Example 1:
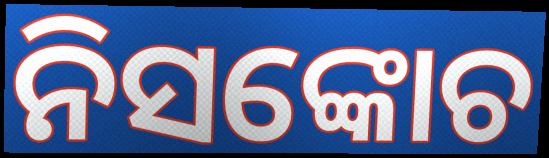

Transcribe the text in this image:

ନିସଙ୍କୋଚ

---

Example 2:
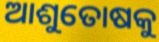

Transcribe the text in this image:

ଆଶୁତୋଷକୁ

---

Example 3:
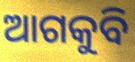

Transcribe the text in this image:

ଆଗକୁବି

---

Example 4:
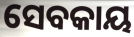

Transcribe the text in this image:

ସେବକାୟ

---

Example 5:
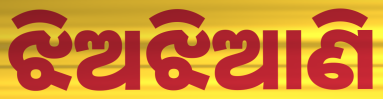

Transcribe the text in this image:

ଝିଅଝିଆଣି